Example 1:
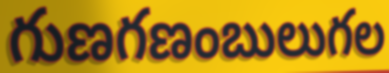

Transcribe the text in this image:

గుణగణంబులుగల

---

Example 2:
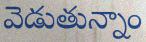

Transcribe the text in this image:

వెడుతున్నాం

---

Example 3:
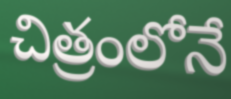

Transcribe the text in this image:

చిత్రంలోనే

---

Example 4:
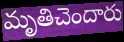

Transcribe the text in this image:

మృతిచెందారు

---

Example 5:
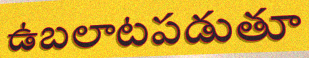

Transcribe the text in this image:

ఉబలాటపడుతూ